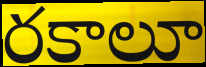
రకాలూ